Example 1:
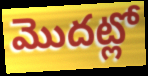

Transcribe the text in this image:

మొదట్లో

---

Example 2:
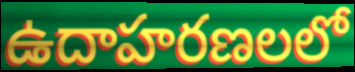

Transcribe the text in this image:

ఉదాహరణలలో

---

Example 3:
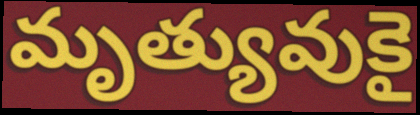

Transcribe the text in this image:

మృత్యువుకై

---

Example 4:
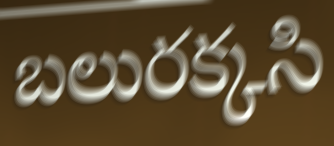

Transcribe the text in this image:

బలురక్కసి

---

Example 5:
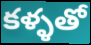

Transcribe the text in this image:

కళ్ళతో